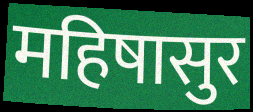
महिषासुर